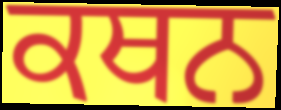
ਕਥਨ